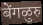
बेंगळुरु